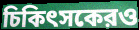
চিকিৎসকেরও